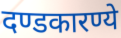
दण्डकारण्ये